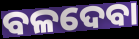
ବଳଦେବା